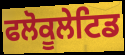
ਫਲੋਕੂਲੇਟਿਡ